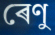
ৰেণু